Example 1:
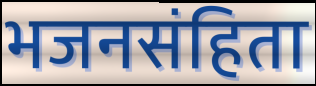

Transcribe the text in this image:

भजनसंहिता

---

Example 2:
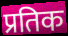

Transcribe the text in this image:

प्रतिक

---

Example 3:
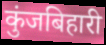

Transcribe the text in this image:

कुंजबिहारी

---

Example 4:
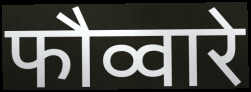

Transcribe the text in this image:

फौव्वारे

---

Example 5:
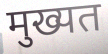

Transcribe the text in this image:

मुख्‍यत